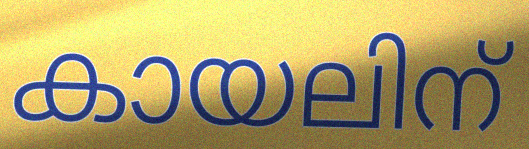
കായലിന്